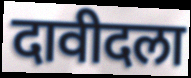
दावीदला